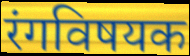
रंगविषयक